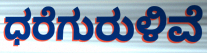
ಧರೆಗುರುಳಿವೆ